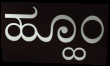
ಹ್ಹೂಂ